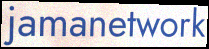
jamanetwork